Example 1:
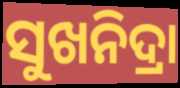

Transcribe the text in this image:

ସୁଖନିଦ୍ରା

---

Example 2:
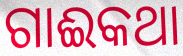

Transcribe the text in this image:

ଗାଈକଥା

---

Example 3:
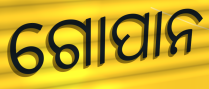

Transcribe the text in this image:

ଗୋପାନ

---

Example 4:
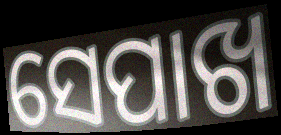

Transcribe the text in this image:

ସେପାଖ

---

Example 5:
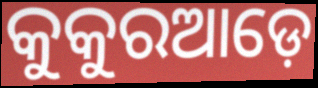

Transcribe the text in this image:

କୁକୁରଆଡ଼େ